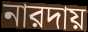
নারদায়